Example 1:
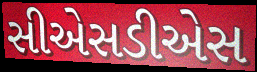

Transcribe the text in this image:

સીએસડીએસ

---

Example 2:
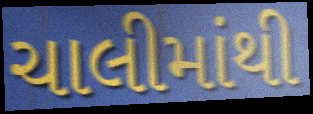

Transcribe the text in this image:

ચાલીમાંથી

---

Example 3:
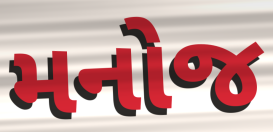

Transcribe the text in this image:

મનોજ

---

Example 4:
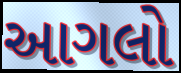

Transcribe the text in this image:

આગલો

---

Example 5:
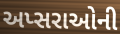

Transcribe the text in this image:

અપ્સરાઓની